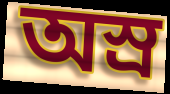
অস্র